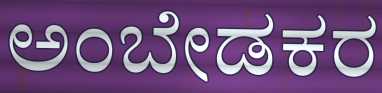
ಅಂಬೇಡಕರ